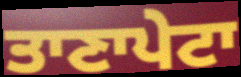
ਤਾਣਾਪੇਟਾ